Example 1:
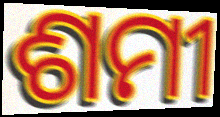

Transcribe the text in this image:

ଶମୀ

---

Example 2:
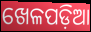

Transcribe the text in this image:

ଖେଳପଡ଼ିଆ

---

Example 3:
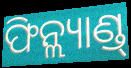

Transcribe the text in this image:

ଫିନ୍ଲ୍ୟାଣ୍ଡ୍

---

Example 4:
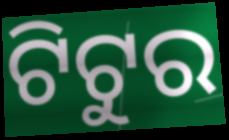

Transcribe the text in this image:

ଟିଟୁର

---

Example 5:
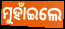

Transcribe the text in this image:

ମୁହାଁଇଲେ